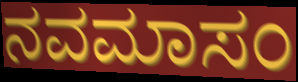
ನವಮಾಸಂ